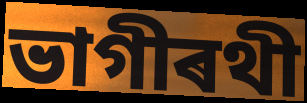
ভাগীৰথী